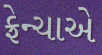
ફ્રેન્ચાએ